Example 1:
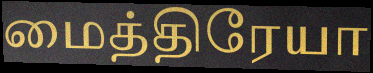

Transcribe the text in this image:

மைத்திரேயா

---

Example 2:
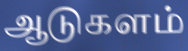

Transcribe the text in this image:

ஆடுகளம்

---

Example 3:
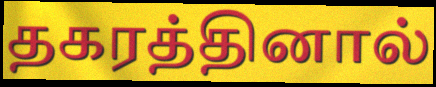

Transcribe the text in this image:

தகரத்தினால்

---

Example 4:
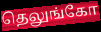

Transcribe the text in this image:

தெலுங்கோ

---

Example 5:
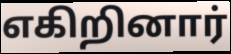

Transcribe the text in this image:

எகிறினார்